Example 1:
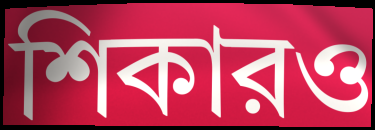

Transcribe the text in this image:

শিকারও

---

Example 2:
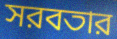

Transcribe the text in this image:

সরবতার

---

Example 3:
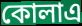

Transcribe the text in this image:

কোলাএ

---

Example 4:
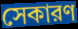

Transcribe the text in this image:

সেকারণ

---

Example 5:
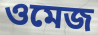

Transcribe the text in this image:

ওমেজ